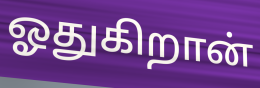
ஓதுகிறான்